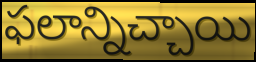
ఫలాన్నిచ్చాయి